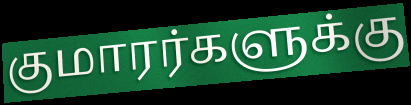
குமாரர்களுக்கு